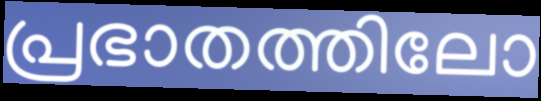
പ്രഭാതത്തിലോ